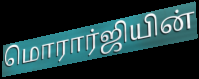
மொரார்ஜியின்